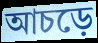
আচড়ে